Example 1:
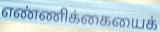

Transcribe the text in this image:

எண்ணிக்கையைக்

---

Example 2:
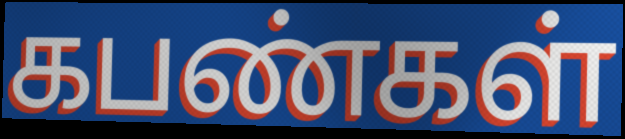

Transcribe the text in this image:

கபண்கள்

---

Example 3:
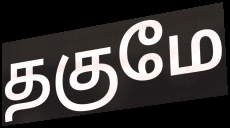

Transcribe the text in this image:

தகுமே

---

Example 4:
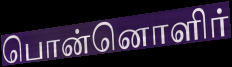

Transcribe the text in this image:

பொன்னொளிர்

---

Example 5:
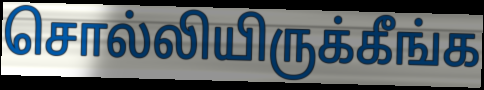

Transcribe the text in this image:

சொல்லியிருக்கீங்க